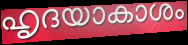
ഹൃദയാകാശം